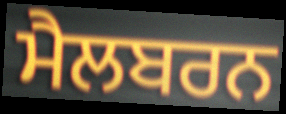
ਮੈਲਬਰਨ